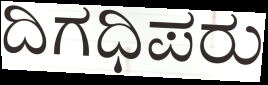
ದಿಗಧಿಪರು